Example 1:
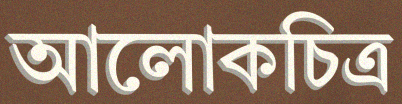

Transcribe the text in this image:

আলোকচিত্ৰ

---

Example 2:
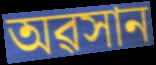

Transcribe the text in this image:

অৱসান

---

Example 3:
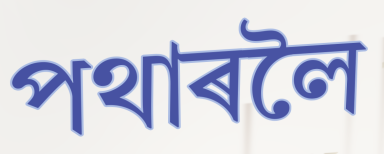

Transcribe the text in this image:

পথাৰলৈ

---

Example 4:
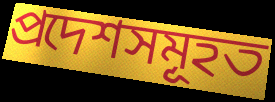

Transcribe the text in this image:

প্ৰদেশসমূহত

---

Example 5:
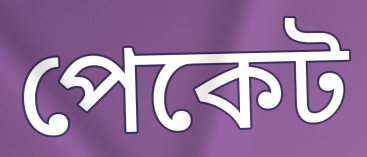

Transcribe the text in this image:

পেকেট